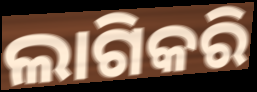
ଲାଗିକରି